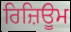
ਰਿਜ਼ਿਊਮ